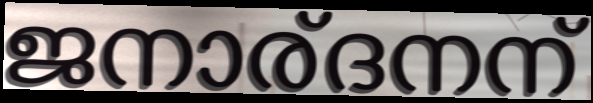
ജനാര്ദനന്